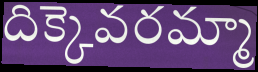
దిక్కెవరమ్మా